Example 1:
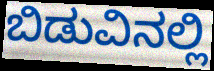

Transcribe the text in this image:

ಬಿಡುವಿನಲ್ಲಿ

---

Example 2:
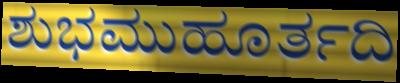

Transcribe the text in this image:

ಶುಭಮುಹೂರ್ತದಿ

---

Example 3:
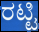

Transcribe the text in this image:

ರಟ್ಟಿ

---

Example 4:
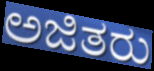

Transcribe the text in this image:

ಅಜಿತರು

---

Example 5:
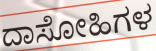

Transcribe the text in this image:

ದಾಸೋಹಿಗಳ